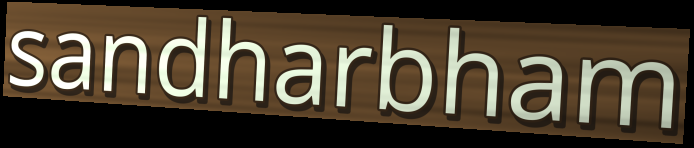
sandharbham